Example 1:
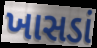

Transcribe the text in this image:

ખાસડાં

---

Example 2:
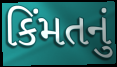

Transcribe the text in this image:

કિંમતનું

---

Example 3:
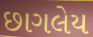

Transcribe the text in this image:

છાગલેય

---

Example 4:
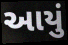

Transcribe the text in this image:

આયું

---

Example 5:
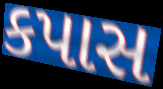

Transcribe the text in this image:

કપાસ